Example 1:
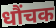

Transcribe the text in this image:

धौंचक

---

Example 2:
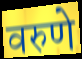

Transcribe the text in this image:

वरुणे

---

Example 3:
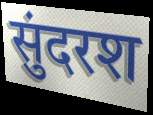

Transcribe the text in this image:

सुंदरश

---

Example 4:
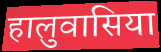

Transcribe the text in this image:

हालुवासिया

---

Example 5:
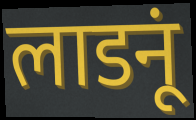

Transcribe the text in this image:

लाडनूं